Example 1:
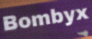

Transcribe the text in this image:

Bombyx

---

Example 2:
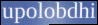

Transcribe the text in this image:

upolobdhi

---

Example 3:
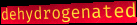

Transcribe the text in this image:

dehydrogenated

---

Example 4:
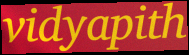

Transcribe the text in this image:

vidyapith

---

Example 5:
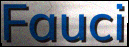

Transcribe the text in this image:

Fauci